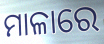
ମାଳାରେ